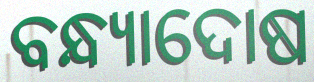
ବନ୍ଧ୍ୟାଦୋଷ